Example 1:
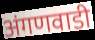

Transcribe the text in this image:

अंगणवाडी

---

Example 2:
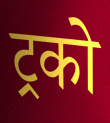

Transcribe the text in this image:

ट्रको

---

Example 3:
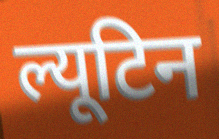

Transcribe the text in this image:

ल्यूटिन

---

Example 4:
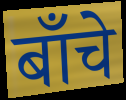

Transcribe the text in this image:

बाँचे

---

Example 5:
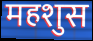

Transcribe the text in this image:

महशुस